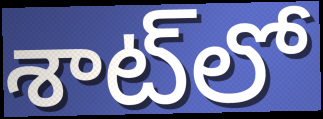
శాట్‌లో